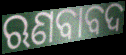
ଋଣବାବଦ